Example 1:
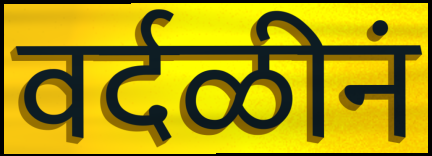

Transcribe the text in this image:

वर्दळीनं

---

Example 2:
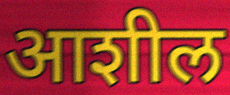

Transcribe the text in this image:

आशील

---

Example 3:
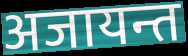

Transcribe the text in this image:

अजायन्त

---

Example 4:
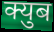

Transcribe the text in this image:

क्युब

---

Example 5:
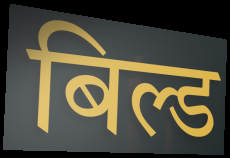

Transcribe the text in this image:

बिल्ड